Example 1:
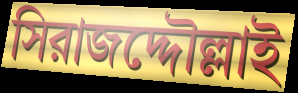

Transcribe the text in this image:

সিরাজদ্দৌল্লাই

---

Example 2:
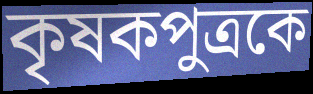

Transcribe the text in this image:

কৃষকপুত্রকে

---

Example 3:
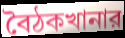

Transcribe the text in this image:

বৈঠকখানার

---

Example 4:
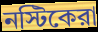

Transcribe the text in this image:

নস্টিকেরা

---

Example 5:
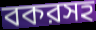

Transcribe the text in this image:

বকরসহ